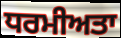
ਧਰਮੀਅਤਾ